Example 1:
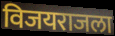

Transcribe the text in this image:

विजयराजला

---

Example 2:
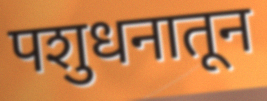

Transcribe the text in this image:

पशुधनातून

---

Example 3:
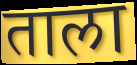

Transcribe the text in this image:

ताला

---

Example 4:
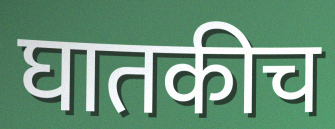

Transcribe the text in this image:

घातकीच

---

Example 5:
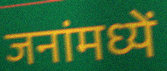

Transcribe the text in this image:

जनांमध्यें